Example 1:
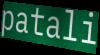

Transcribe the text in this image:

patali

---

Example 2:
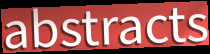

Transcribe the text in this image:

abstracts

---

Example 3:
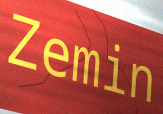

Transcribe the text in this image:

Zemin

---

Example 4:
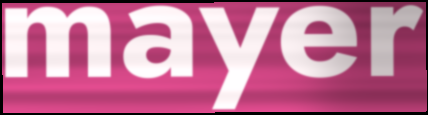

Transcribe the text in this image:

mayer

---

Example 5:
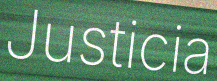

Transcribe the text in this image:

Justicia